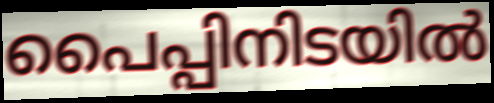
പൈപ്പിനിടയിൽ